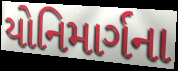
યોનિમાર્ગના